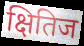
क्षितिज